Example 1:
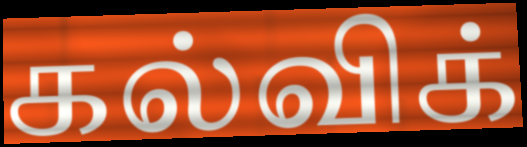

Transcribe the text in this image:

கல்விக்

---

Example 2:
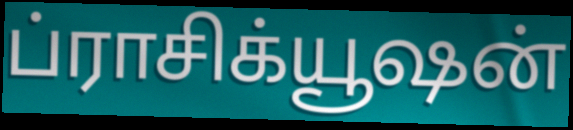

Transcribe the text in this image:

ப்ராசிக்யூஷன்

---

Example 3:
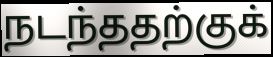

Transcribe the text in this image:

நடந்ததற்குக்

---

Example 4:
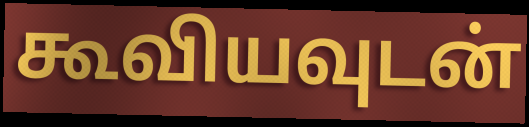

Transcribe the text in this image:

கூவியவுடன்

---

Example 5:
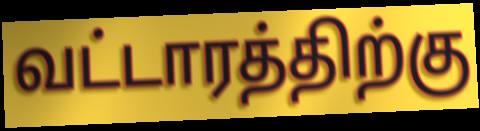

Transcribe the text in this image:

வட்டாரத்திற்கு